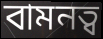
বামনত্ব